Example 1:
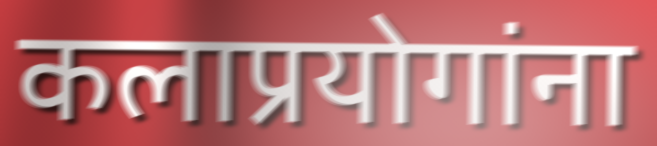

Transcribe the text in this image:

कलाप्रयोगांना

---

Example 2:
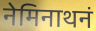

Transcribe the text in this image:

नेमिनाथनं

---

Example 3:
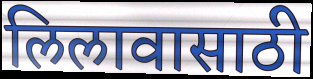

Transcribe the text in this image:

लिलावासाठी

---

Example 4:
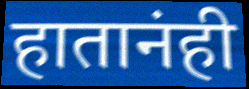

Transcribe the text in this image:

हातानंही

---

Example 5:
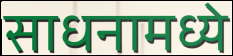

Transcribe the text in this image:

साधनामध्ये